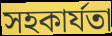
সহকাৰ্যতা